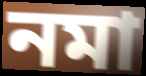
নমা